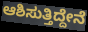
ಆಶಿಸುತ್ತಿದ್ದೇನೆ